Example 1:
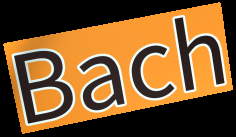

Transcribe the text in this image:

Bach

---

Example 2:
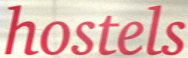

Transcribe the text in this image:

hostels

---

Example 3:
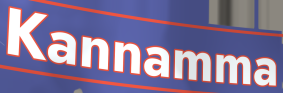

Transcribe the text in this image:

Kannamma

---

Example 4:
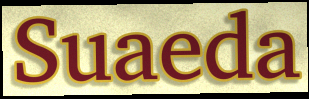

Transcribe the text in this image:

Suaeda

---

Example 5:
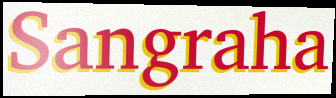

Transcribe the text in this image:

Sangraha